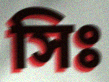
সিঃ